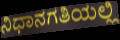
ನಿಧಾನಗತಿಯಲ್ಲಿ